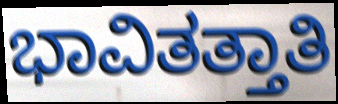
ಭಾವಿತತ್ತಾತಿ